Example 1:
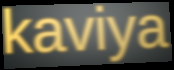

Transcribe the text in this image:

kaviya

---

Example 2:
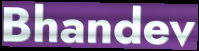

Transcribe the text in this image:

Bhandev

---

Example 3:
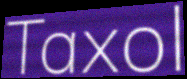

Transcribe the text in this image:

Taxol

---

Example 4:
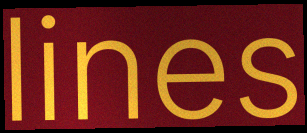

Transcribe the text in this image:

lines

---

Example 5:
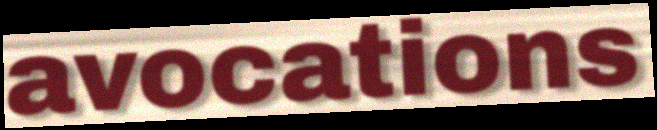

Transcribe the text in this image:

avocations